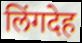
लिंगदेह